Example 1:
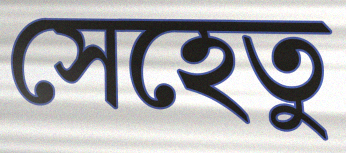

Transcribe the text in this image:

সেহেতু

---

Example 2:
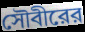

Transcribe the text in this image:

সৌবীরের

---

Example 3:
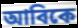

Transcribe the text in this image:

আবিকে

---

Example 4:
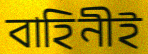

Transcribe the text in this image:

বাহিনীই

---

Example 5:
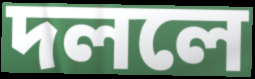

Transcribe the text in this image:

দললে